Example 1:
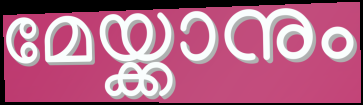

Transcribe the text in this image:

മേയ്ക്കാനും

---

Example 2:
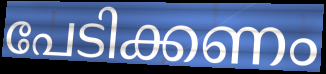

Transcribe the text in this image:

പേടിക്കണം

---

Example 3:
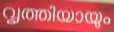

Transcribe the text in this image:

വൃത്തിയായും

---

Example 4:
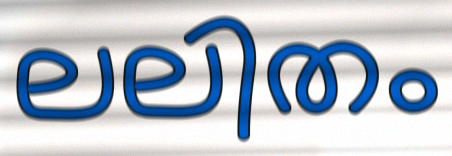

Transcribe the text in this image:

ലലിതം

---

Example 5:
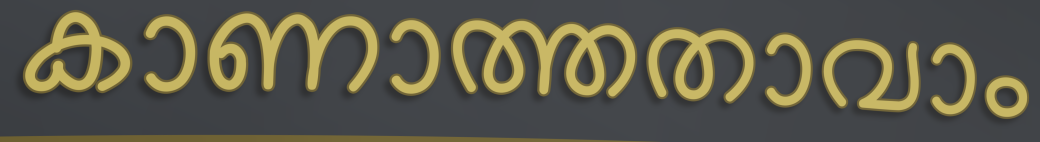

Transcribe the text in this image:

കാണാത്തതാവാം